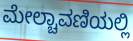
ಮೇಲ್ಚಾವಣಿಯಲ್ಲಿ